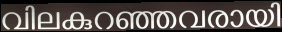
വിലകുറഞ്ഞവരായി